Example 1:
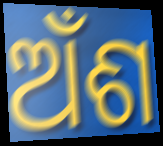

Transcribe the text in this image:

ଅଁଶ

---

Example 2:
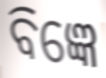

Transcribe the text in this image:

ବିଜ୍ଞେ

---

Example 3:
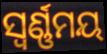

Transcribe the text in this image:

ସ୍ୱର୍ଣ୍ଣମୟ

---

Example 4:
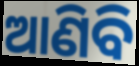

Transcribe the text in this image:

ଆଣିବି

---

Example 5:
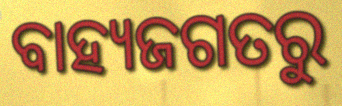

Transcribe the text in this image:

ବାହ୍ୟଜଗତରୁ